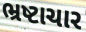
ભ્રષ્ટાચાર